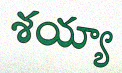
శయ్యా